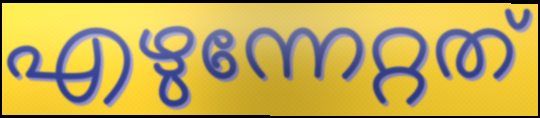
എഴുന്നേറ്റത്